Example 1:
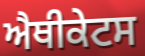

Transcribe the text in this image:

ਐਥੀਕੇਟਸ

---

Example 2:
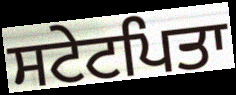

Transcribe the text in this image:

ਸਟੇਟਪਿਤਾ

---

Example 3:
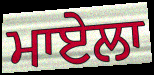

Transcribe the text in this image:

ਮਾਏਲਾ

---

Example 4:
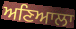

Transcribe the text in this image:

ਅਣਿਆਲਾ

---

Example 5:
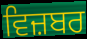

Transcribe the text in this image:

ਵਿਜ਼ਬਰ